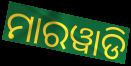
ମାରୱାଡି